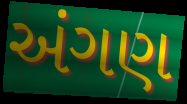
અંગણ